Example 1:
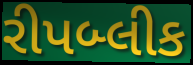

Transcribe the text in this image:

રીપબ્લીક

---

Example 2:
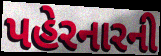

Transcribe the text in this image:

પહેરનારની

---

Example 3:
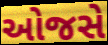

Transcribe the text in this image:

ઓજસે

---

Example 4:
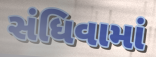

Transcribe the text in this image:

સંધિવામાં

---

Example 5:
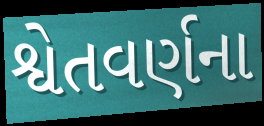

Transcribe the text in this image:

શ્વેતવર્ણના